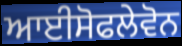
ਆਈਸੋਫਲੇਵੋਨ